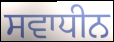
ਸਵਾਧੀਨ